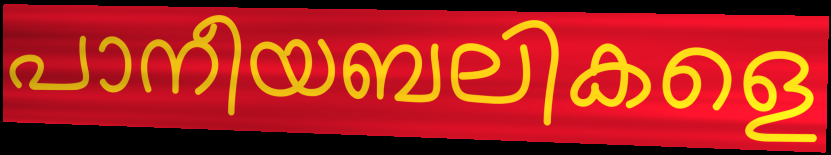
പാനീയബലികളെ